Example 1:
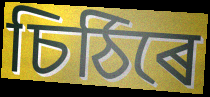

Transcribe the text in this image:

চিঠিৰে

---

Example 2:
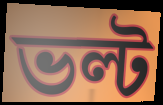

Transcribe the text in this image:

ভল্ট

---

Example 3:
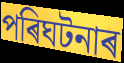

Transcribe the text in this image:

পৰিঘটনাৰ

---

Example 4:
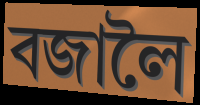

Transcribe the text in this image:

বজালৈ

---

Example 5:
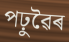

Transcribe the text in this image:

পঢ়ুৱৈৰ